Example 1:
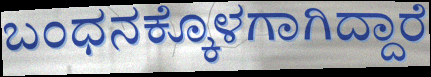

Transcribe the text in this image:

ಬಂಧನಕ್ಕೊಳಗಾಗಿದ್ದಾರೆ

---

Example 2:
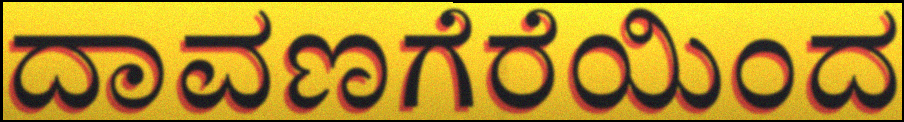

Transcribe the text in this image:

ದಾವಣಗೆರೆಯಿಂದ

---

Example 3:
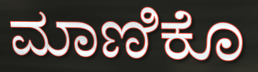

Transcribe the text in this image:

ಮಾಣಿಕೊ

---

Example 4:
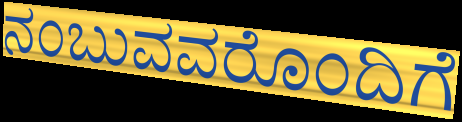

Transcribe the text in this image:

ನಂಬುವವರೊಂದಿಗೆ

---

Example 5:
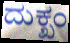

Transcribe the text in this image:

ದುಕ್ಖಂ